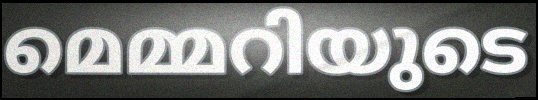
മെമ്മറിയുടെ